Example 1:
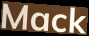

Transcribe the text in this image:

Mack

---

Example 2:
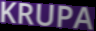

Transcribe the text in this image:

KRUPA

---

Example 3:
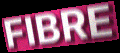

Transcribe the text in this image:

FIBRE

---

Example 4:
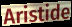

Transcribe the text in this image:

Aristide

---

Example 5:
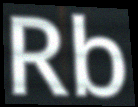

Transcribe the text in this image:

Rb